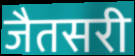
जैतसरी